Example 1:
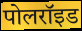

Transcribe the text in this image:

पोलरॉइड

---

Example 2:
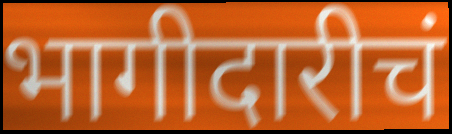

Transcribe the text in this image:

भागीदारीचं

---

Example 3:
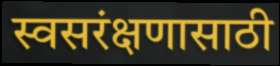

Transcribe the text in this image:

स्वसरंक्षणासाठी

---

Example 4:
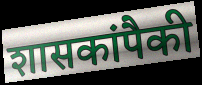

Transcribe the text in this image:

शासकांपैकी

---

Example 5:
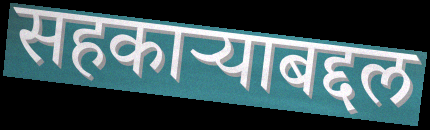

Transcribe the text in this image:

सहकाऱ्याबद्दल